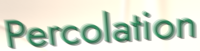
Percolation